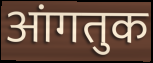
आंगतुक